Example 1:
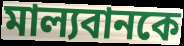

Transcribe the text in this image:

মাল্যবানকে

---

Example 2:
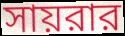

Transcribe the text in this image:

সায়রার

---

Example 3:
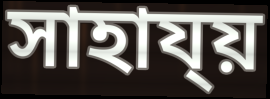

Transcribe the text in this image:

সাহায্য়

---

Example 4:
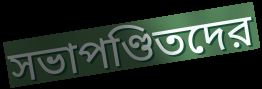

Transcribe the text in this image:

সভাপণ্ডিতদের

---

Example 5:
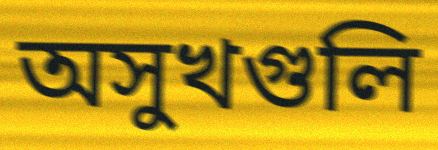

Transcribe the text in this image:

অসুখগুলি